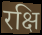
रक्षि